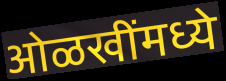
ओळखींमध्ये